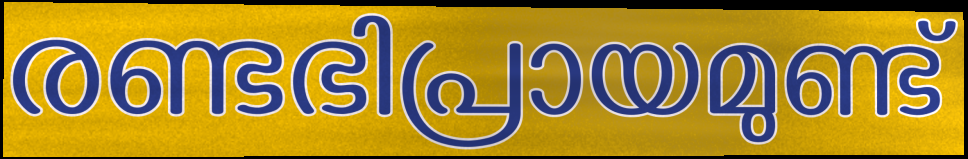
രണ്ടഭിപ്രായമുണ്ട്